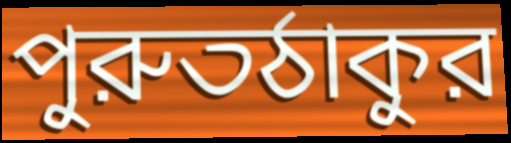
পুরুতঠাকুর